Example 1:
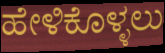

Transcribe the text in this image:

ಹೇಳಿಕೊಳ್ಳಲು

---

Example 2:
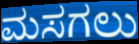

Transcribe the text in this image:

ಮಸಗಲು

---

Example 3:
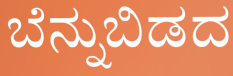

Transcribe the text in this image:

ಬೆನ್ನುಬಿಡದ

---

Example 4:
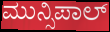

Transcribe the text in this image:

ಮುನ್ಸಿಪಾಲ್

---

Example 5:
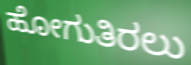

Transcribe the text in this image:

ಹೋಗುತಿರಲು